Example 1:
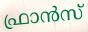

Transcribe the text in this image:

ഫ്രാൻസ്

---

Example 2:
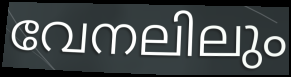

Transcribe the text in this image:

വേനലിലും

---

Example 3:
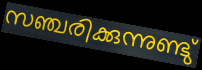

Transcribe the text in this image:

സഞ്ചരിക്കുന്നുണ്ടു്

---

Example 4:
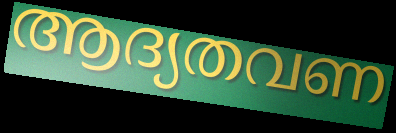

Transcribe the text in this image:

ആദ്യതവണ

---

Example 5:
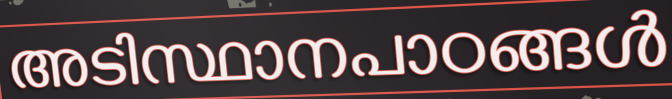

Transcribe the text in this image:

അടിസ്ഥാനപാഠങ്ങൾ